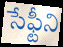
సేఫ్టీని